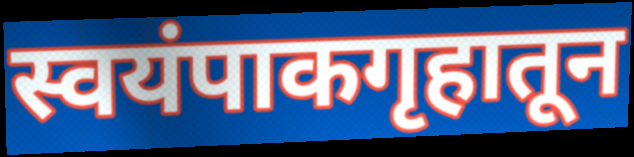
स्वयंपाकगृहातून